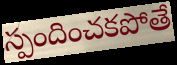
స్పందించకపోతే